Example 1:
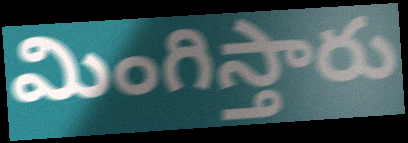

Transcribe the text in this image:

మింగిస్తారు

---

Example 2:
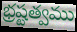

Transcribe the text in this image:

భ్రష్టత్వము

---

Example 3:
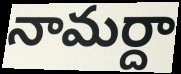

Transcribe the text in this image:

నామర్దా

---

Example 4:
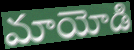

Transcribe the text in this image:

మాయోడి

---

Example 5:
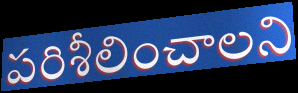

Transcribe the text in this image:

పరిశీలించాలని